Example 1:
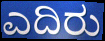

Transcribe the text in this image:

ಎದಿರು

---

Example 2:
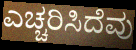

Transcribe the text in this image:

ಎಚ್ಚರಿಸಿದೆವು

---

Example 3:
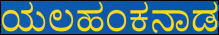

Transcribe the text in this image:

ಯಲಹಂಕನಾಡ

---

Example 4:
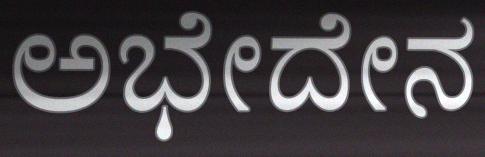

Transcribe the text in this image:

ಅಭೇದೇನ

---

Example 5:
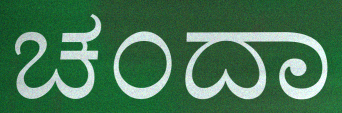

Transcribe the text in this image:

ಚಂದಾ